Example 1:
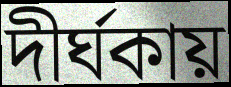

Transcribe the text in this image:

দীর্ঘকায়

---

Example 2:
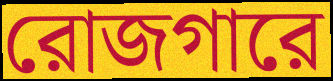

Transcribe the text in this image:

রোজগারে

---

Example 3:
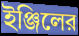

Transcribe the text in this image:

ইঞ্জিলের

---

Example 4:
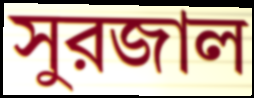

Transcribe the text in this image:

সুরজাল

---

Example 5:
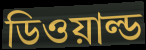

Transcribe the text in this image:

ডিওয়াল্ড